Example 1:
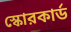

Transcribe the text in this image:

স্কোরকার্ড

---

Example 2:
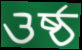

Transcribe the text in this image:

ওষ্ঠ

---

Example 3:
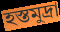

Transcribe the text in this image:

হস্তমুদ্রা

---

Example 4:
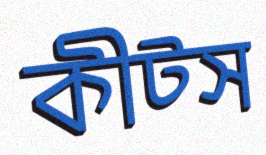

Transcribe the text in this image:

কীট্স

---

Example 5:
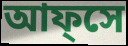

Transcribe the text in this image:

আফ্সে